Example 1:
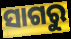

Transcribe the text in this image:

ସାଗରୁ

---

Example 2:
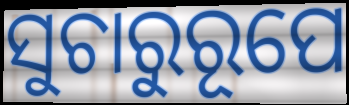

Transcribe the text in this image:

ସୁଚାରୁରୂପେ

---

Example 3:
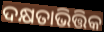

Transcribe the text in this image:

ଦକ୍ଷତାଭିତ୍ତିକ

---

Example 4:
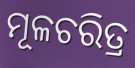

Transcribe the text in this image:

ମୂଳଚରିତ୍ର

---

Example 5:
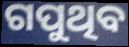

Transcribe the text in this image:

ଗପୁଥିବ